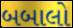
બબાલો